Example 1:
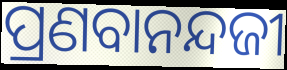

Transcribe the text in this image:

ପ୍ରଣବାନନ୍ଦଜୀ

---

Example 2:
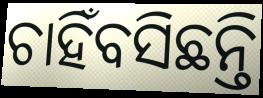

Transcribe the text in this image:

ଚାହିଁବସିଛନ୍ତି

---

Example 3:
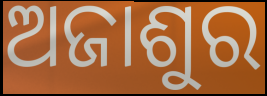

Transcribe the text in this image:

ଅଜାଶୁର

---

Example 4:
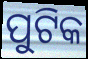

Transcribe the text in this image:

ପୁଟିକ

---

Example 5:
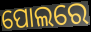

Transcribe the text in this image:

ପୋଲରେ